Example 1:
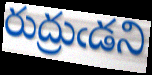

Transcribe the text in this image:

రుద్రుఁడని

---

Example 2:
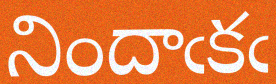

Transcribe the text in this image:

నిందాఁకఁ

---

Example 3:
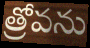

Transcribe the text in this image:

త్రోవను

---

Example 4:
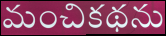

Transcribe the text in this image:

మంచికథను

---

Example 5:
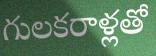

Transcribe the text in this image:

గులకరాళ్లతో